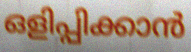
ഒളിപ്പിക്കാൻ